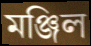
মঞ্জিল